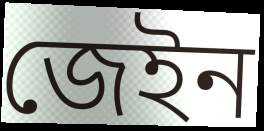
জেইন